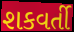
શકવર્તી